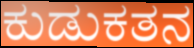
ಕುಡುಕತನ